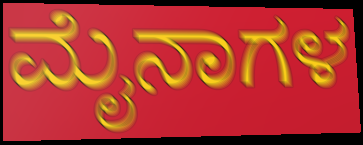
ಮೈನಾಗಳ